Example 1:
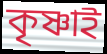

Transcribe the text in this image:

কৃষ্ণাই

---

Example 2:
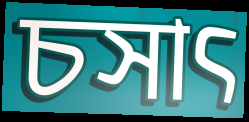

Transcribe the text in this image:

চসাৎ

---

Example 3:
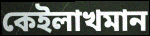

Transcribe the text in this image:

কেইলাখমান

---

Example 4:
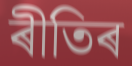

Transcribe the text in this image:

ৰীতিৰ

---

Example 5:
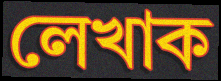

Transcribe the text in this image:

লেখাক